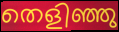
തെളിഞ്ഞു